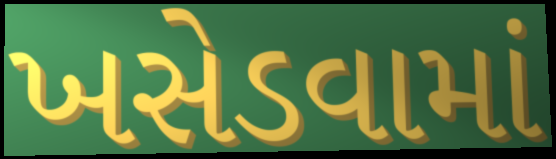
ખસેડવામાં